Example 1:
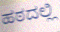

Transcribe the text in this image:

ಹಠದಲ್ಲಿ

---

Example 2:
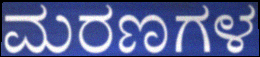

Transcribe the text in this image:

ಮರಣಗಳ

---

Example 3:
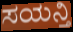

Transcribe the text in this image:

ಸಯನ್ತಿ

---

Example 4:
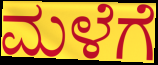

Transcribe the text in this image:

ಮಳೆಗೆ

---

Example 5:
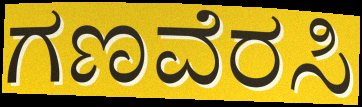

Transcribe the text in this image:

ಗಣವೆರಸಿ